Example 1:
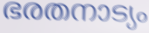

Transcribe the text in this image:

ഭരതനാട്യം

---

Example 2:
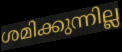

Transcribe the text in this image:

ശമിക്കുന്നില്ല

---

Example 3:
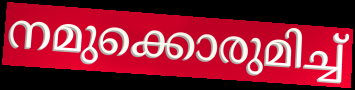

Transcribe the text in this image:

നമുക്കൊരുമിച്ച്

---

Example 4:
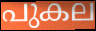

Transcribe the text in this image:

പുകല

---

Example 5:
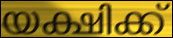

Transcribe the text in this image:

യക്ഷിക്ക്